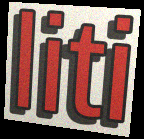
liti